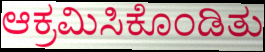
ಆಕ್ರಮಿಸಿಕೊಂಡಿತು